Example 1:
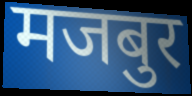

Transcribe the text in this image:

मजबुर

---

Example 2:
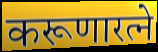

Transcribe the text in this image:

करूणारत्ने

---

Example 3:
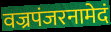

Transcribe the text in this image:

वज्रपंजरनामेदं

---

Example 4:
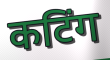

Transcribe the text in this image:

कटिंग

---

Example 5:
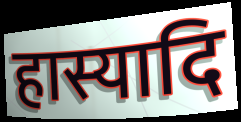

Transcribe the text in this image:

हास्यादि